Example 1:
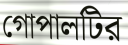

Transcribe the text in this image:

গোপালটির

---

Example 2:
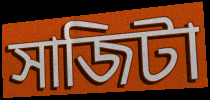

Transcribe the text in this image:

সাজিটা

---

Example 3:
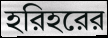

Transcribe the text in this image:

হরিহরের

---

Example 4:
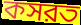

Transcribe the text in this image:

কসরত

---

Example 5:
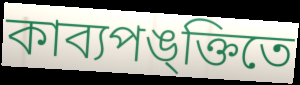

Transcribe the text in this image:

কাব্যপঙ্ক্তিতে